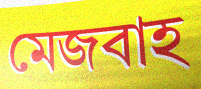
মেজবাহ